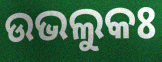
ଉଭଲୁକଃ